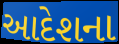
આદેશના